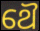
ଥୈ